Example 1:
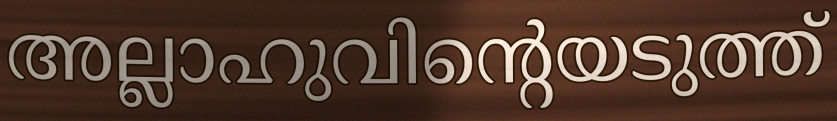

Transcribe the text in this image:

അല്ലാഹുവിന്റെയടുത്ത്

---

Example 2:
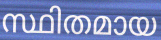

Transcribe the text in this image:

സ്ഥിതമായ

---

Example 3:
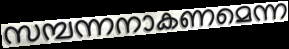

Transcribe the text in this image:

സമ്പന്നനാകണമെന്ന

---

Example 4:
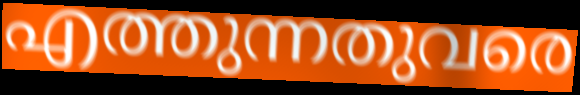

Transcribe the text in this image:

എത്തുന്നതുവരെ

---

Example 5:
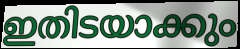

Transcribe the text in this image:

ഇതിടയാക്കും